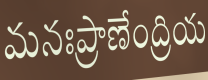
మనఃప్రాణేంద్రియ